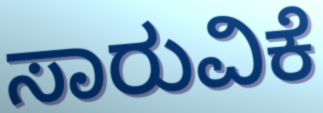
ಸಾರುವಿಕೆ